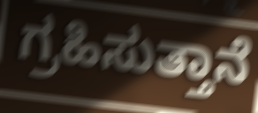
ಗ್ರಹಿಸುತ್ತಾನೆ